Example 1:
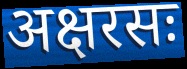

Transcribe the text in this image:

अक्षरसः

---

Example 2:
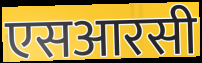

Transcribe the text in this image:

एसआरसी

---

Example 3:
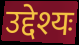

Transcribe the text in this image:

उद्देश्यः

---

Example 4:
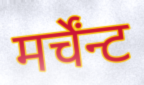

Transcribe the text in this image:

मर्चेंन्ट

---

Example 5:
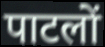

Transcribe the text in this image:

पाटलों